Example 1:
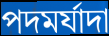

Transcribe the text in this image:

পদমর্যাদা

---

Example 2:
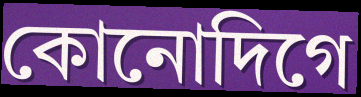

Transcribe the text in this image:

কোনোদিগে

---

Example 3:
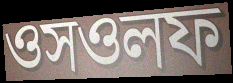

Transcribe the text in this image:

ওসওলফ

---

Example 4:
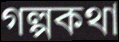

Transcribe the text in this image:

গল্পকথা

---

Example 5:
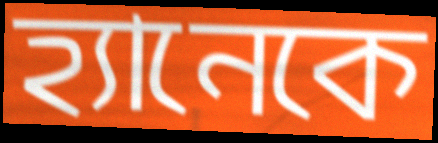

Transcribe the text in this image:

হ্যানেকে